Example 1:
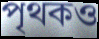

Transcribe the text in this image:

পৃথকও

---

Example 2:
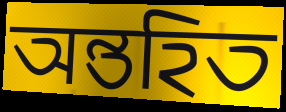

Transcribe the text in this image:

অন্তহিত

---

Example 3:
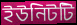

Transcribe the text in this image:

ইউনিটটি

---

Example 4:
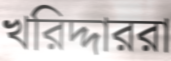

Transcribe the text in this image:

খরিদ্দাররা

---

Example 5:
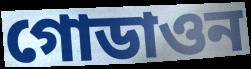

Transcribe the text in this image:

গোডাওন